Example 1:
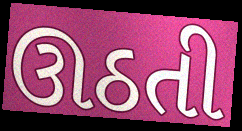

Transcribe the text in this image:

ઊઠતી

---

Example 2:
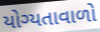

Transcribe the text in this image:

યોગ્યતાવાળો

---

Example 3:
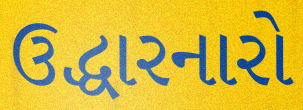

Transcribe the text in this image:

ઉદ્ધારનારો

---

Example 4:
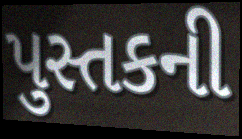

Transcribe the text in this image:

પુસ્તકની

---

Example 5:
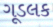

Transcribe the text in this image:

ગૂડલક